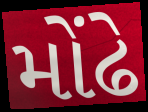
મોંઢે